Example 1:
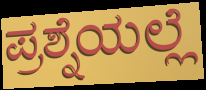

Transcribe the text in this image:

ಪ್ರಶ್ನೆಯಲ್ಲೆ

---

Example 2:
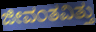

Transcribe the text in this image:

ಜೀವಂತವಿತ್ತು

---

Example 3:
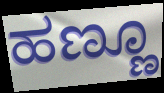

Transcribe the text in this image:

ಹಣ್ಣೂ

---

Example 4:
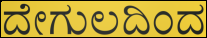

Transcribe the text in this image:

ದೇಗುಲದಿಂದ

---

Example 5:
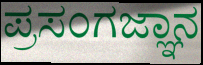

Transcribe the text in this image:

ಪ್ರಸಂಗಜ್ಞಾನ